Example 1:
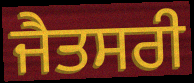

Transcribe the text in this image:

ਜੈਤਸਰੀ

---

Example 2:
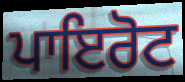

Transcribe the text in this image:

ਪਾਇਰੋਟ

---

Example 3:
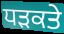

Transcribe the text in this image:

ਧੜਕਤੇ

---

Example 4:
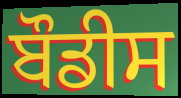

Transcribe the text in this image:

ਬੌਡੀਸ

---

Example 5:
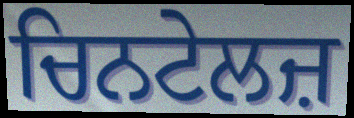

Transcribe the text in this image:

ਚਿਨਟੇਲਜ਼